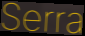
Serra